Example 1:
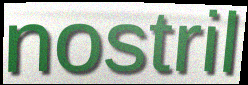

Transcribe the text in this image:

nostril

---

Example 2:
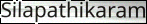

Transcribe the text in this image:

Silapathikaram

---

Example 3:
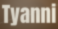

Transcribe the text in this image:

Tyanni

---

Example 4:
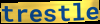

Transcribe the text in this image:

trestle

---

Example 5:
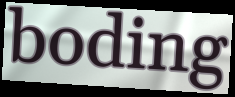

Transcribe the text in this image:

boding